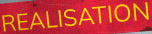
REALISATION